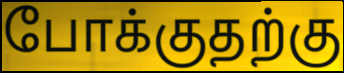
போக்குதற்கு